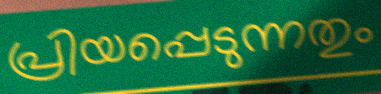
പ്രിയപ്പെടുന്നതും